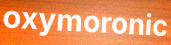
oxymoronic